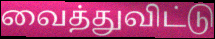
வைத்துவிட்டு